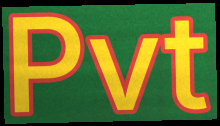
Pvt